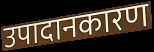
उपादानकारण